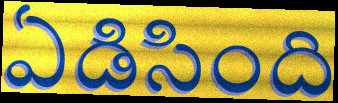
ఏడిసింది